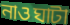
নাওঘাটা